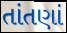
તાંતણાં